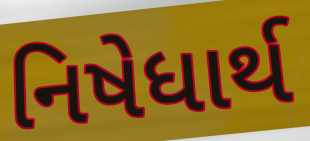
નિષેધાર્થ